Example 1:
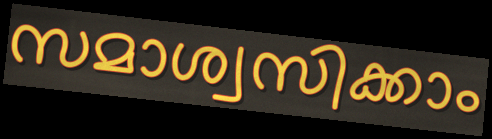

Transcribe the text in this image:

സമാശ്വസിക്കാം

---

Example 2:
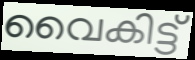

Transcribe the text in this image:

വൈകിട്ട്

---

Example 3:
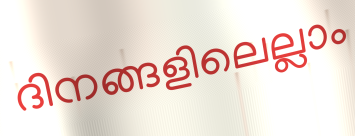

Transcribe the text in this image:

ദിനങ്ങളിലെല്ലാം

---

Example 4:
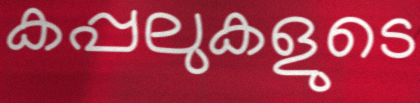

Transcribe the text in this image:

കപ്പലുകളുടെ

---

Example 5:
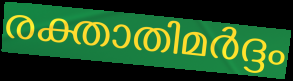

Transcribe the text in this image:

രക്താതിമർദ്ദം